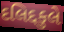
દલિદ્દકુલે